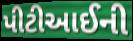
પીટીઆઈની